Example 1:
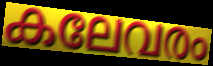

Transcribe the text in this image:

കലേവരം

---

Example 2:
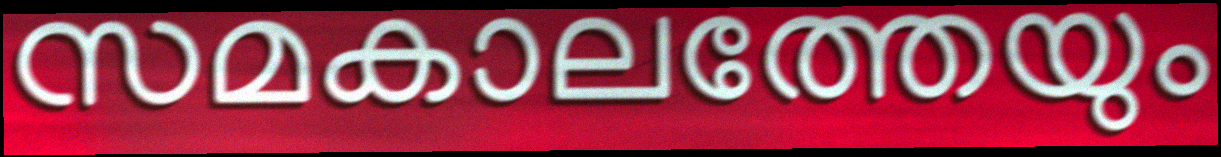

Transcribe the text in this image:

സമകാലത്തേയും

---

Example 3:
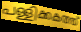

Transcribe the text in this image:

പള്ളിക്കകത്ത്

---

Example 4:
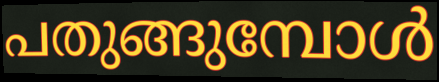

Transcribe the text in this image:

പതുങ്ങുമ്പോൾ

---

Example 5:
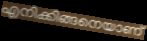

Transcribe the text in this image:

എനിക്കിങ്ങനെയാണ്